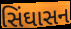
સિંઘાસન